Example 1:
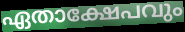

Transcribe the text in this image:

ഏതാക്ഷേപവും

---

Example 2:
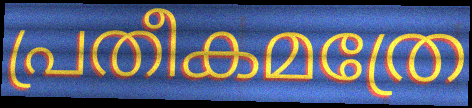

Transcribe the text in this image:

പ്രതീകമത്രേ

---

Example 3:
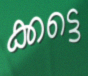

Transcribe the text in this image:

ക്കട്ടെ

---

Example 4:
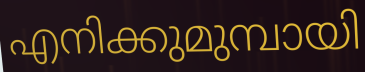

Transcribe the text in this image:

എനിക്കുമുമ്പായി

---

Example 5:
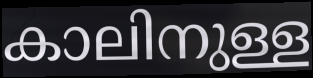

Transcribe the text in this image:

കാലിനുള്ള